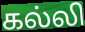
கல்லி